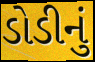
ડોડીનું